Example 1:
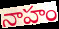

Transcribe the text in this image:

నాహం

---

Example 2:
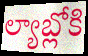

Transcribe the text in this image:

ల్యాబ్లోకి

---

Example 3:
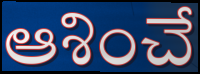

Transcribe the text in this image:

ఆశించే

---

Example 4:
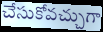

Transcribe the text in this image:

చేసుకోవచ్చుగా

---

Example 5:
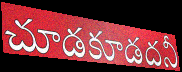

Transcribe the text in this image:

చూడకూడదనీ